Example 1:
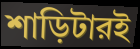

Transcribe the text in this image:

শাড়িটারই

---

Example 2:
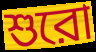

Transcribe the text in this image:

শুরো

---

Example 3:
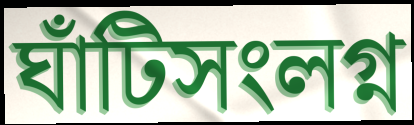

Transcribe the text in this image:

ঘাঁটিসংলগ্ন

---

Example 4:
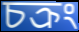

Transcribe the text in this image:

চক্রং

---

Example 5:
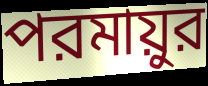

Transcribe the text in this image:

পরমায়ুর